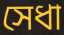
সেধা